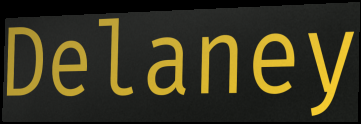
Delaney